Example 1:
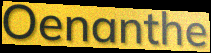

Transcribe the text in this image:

Oenanthe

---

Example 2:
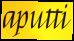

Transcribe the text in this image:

aputti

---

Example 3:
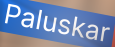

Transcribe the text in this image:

Paluskar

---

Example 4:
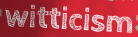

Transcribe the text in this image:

witticism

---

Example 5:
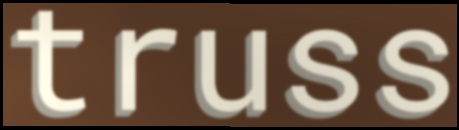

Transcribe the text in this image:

truss